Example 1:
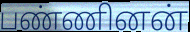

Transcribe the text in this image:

பண்ணினன்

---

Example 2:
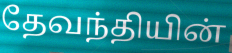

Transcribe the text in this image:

தேவந்தியின்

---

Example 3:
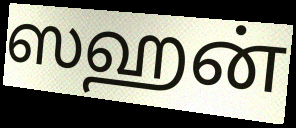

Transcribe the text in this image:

ஸஹன்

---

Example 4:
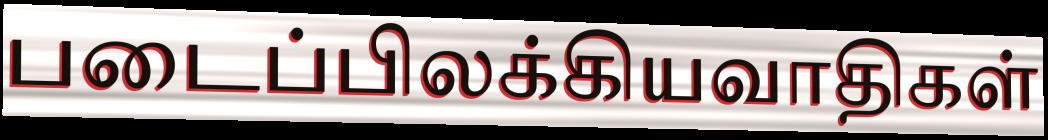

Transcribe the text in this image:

படைப்பிலக்கியவாதிகள்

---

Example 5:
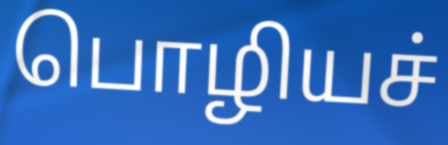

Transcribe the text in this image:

பொழியச்